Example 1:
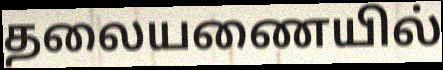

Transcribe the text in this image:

தலையணையில்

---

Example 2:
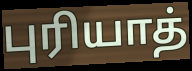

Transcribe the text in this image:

புரியாத்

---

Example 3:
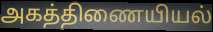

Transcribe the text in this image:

அகத்திணையியல்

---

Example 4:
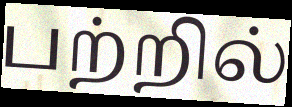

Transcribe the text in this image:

பற்றில்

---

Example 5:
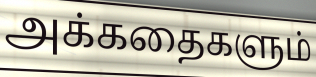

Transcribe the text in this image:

அக்கதைகளும்